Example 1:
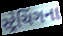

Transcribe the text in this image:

સ્ટ્રેચિંગના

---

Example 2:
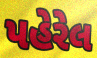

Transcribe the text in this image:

પહેરેલ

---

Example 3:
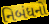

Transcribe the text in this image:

નિબંધનો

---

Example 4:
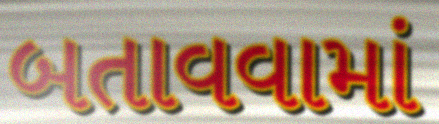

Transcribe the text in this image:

બતાવવામાં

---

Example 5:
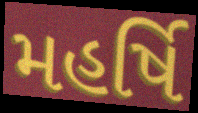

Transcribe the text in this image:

મહર્ષિ